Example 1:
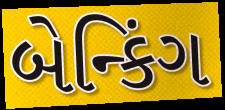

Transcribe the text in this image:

બેન્કિંગ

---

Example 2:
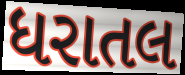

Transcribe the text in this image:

ધરાતલ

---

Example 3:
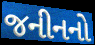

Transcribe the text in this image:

જનીનનો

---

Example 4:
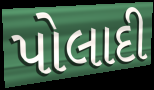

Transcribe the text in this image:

પોલાદી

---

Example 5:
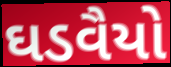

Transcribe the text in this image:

ઘડવૈયો